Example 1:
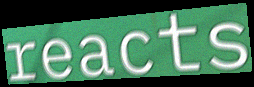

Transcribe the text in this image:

reacts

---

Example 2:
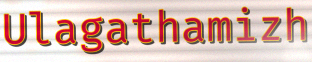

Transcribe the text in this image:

Ulagathamizh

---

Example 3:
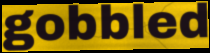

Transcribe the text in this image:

gobbled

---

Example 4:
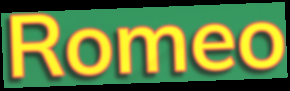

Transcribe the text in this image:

Romeo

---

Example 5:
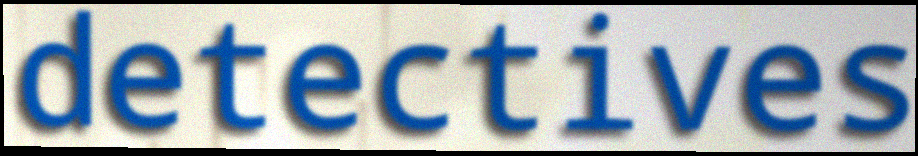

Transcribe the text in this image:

detectives